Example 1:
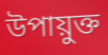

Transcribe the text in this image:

উপায়ুক্ত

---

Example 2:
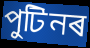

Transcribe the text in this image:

পুটিনৰ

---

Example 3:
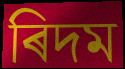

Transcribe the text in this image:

ৰিদম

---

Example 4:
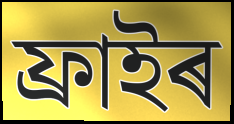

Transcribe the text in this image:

ফ্ৰাইৰ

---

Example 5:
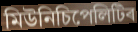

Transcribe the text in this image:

মিউনিচিপেলিটিৰ